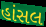
હાંસલ